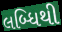
લબ્ધિથી